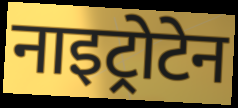
नाइट्रोटेन